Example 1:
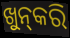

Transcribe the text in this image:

ଖୁନ୍‍କରି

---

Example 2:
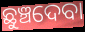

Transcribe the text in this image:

ଛୁଞ୍ଚଦେବା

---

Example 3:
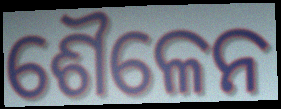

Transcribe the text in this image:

ଶୈଳେନ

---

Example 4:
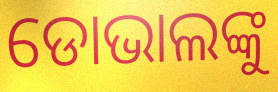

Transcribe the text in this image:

ଡୋଭାଲଙ୍କୁ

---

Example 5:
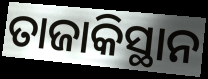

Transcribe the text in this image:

ତାଜାକିସ୍ଥାନ